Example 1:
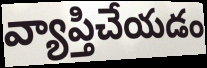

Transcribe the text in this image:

వ్యాప్తిచేయడం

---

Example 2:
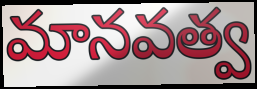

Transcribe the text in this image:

మానవత్వ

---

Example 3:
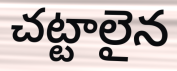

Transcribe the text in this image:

చట్టాలైన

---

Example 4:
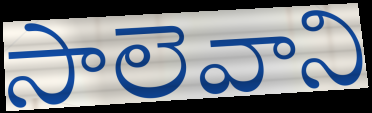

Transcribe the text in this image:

సాలెవాని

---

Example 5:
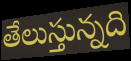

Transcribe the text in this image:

తేలుస్తున్నది